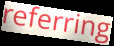
referring